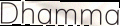
Dhamma